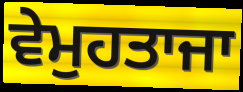
ਵੇਮੁਹਤਾਜਾ